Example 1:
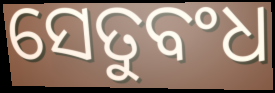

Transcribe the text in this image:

ସେତୁବଂଧ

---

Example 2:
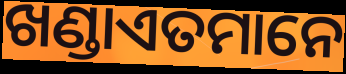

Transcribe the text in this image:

ଖଣ୍ଡାଏତମାନେ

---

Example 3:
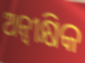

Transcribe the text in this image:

ଅନ୍ୱୀକ୍ଷିକ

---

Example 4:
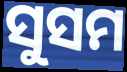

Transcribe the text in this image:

ସୁସମ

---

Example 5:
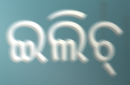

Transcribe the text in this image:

ଇଲିଚ୍